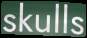
skulls